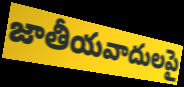
జాతీయవాదులపై